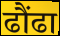
ढौंढा